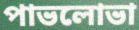
পাভলোভা